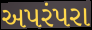
અપરંપરા